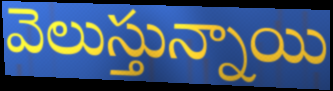
వెలుస్తున్నాయి